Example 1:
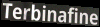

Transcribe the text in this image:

Terbinafine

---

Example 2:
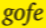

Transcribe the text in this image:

gofe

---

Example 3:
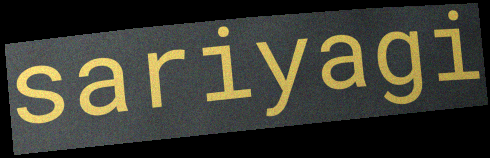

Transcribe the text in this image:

sariyagi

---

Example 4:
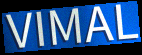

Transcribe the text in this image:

VIMAL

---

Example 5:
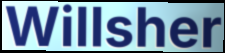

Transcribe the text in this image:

Willsher